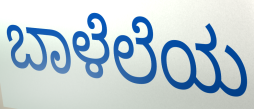
ಬಾಳೆಲೆಯ